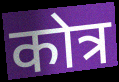
कोत्र